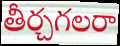
తీర్చగలరా